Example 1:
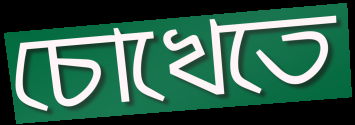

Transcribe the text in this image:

চোখেতে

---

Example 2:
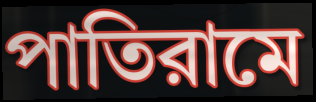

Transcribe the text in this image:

পাতিরামে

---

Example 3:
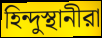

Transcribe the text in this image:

হিন্দুস্থানীরা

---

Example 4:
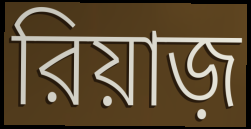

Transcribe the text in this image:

রিয়াজ়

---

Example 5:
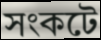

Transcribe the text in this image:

সংকটে